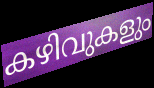
കഴിവുകളും